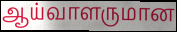
ஆய்வாளருமான